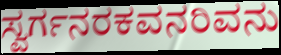
ಸ್ವರ್ಗನರಕವನರಿವನು